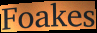
Foakes